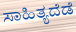
ಸಾಹಿತ್ಯದೆಡೆ